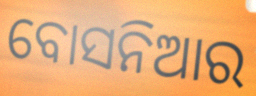
ବୋସନିଆର